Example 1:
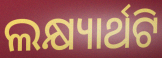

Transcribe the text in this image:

ଲକ୍ଷ୍ୟାର୍ଥଟି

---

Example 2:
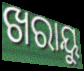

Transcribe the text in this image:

ଖରାୟୁ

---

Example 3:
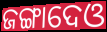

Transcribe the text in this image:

ଜଙ୍ଗାଦେଓ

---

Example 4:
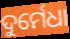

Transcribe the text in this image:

ଦୁର୍ମେଧା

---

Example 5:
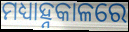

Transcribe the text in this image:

ମଧ୍ୟାହ୍ନକାଳରେ